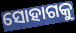
ସୋହାଗକୁ